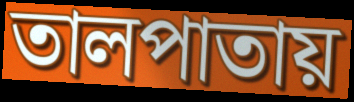
তালপাতায়